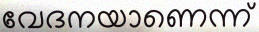
വേദനയാണെന്ന്